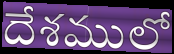
దేశములో